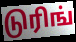
டுரிங்